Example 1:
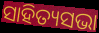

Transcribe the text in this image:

ସାହିତ୍ୟସଭା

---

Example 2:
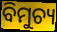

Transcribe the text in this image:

ବିମୁଚ୍ୟ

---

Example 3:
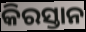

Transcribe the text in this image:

କିରସ୍ତାନ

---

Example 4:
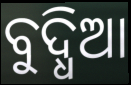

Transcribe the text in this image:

ବୁଦ୍ଧିଆ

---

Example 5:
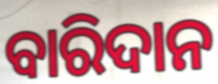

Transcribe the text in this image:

ବାରିଦାନ